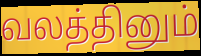
வலத்தினும்